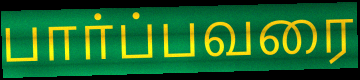
பார்ப்பவரை